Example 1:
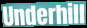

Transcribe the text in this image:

Underhill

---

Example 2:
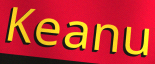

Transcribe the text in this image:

Keanu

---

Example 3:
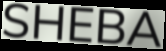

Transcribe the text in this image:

SHEBA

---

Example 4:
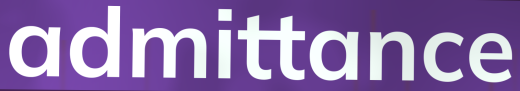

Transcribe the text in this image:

admittance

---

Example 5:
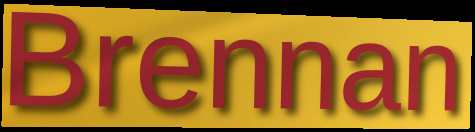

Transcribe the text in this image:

Brennan